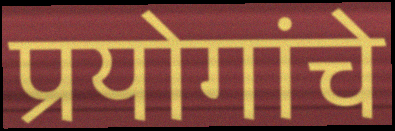
प्रयोगांचे